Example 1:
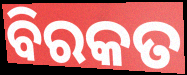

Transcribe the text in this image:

ବିରକତ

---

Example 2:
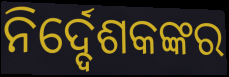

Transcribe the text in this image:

ନିର୍ଦ୍ଦେଶକଙ୍କର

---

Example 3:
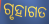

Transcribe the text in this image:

ଗୃହାଗତ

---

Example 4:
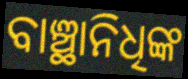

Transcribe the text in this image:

ବାଞ୍ଛାନିଧିଙ୍କ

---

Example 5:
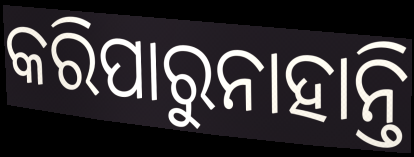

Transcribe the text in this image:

କରିପାରୁନାହାନ୍ତି